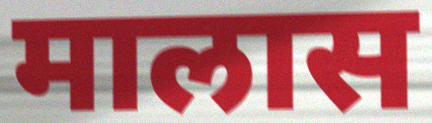
मालास